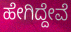
ಹೇಗಿದ್ದೇವೆ